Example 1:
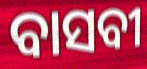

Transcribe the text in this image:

ବାସବୀ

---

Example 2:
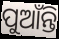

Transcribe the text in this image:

ପୁଆଁନ୍ତି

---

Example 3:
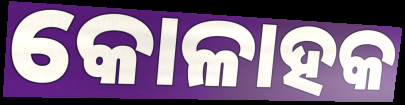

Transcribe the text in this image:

କୋଳାହକ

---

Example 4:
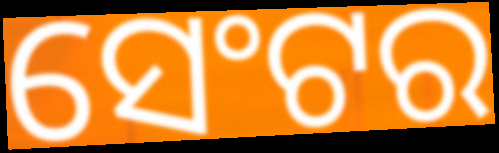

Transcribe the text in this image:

ସେଂଟର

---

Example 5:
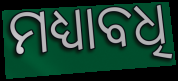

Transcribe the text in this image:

ମଧ୍ୟାବଧି